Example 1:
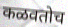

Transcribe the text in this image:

कळवतोच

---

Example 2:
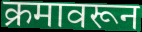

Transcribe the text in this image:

क्रमावरून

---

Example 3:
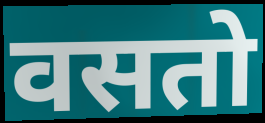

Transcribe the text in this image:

वसतो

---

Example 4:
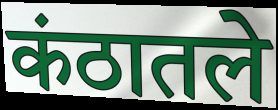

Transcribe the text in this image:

कंठातले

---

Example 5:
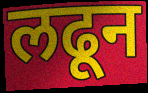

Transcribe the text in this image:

लढून